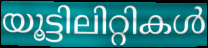
യൂട്ടിലിറ്റികൾ